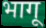
भागू